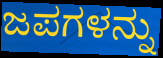
ಜಪಗಳನ್ನು